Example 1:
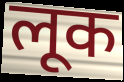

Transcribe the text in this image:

लूक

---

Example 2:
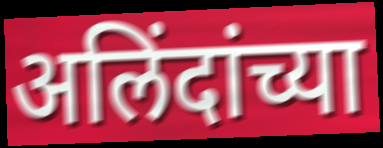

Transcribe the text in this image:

अलिंदांच्या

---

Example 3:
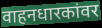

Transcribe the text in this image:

वाहनधारकांवर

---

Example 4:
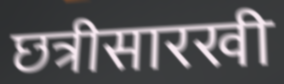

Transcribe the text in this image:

छत्रीसारखी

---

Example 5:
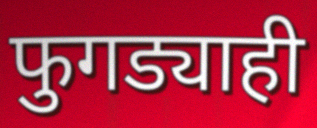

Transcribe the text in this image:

फुगड्याही